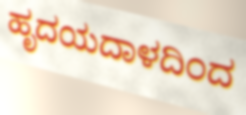
ಹೃದಯದಾಳದಿಂದ